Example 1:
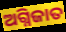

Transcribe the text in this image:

ଅଗ୍ନିଜାତ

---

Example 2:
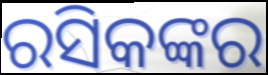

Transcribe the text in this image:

ରସିକଙ୍କର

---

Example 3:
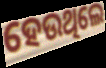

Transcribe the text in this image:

ହେଉଥିଲେ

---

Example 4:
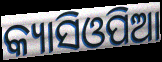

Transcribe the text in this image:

କ୍ୟାସିଓପିଆ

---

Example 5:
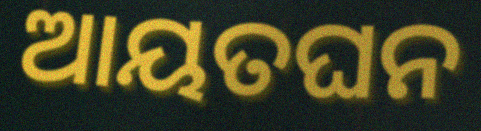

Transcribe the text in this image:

ଆୟତଘନ